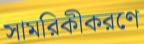
সামরিকীকরণে